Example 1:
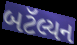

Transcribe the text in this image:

બટૅલ્યન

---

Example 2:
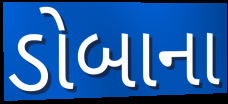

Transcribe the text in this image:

ડોબાના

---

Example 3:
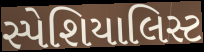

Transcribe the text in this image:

સ્પેશિયાલિસ્ટ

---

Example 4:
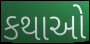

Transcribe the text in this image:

કથાઓ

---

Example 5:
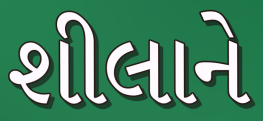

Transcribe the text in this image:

શીલાને